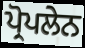
ਪ੍ਰੋਪਲੇਨ